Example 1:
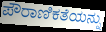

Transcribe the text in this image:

ಪೌರಾಣಿಕತೆಯನ್ನು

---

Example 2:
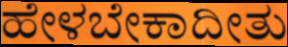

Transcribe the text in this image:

ಹೇಳಬೇಕಾದೀತು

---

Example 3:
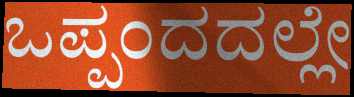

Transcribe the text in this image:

ಒಪ್ಪಂದದಲ್ಲೇ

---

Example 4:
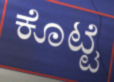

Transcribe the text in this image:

ಕೊಟ್ಟೆ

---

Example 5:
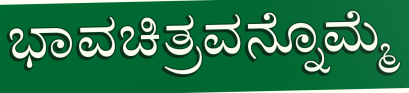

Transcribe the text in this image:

ಭಾವಚಿತ್ರವನ್ನೊಮ್ಮೆ